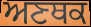
ਅਣਥਕ